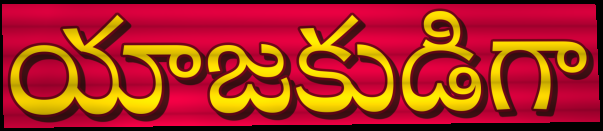
యాజకుడిగా